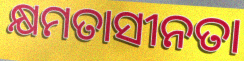
କ୍ଷମତାସୀନତା